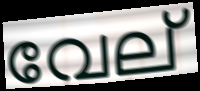
വേല്